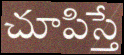
చూపిస్తే